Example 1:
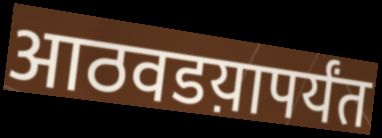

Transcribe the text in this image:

आठवडय़ापर्यंत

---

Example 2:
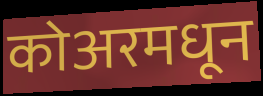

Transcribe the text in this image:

कोअरमधून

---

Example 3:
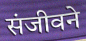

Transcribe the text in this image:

संजीवने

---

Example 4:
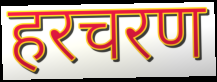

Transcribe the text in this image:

हरचरण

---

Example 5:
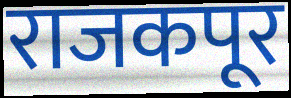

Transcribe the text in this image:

राजकपूर